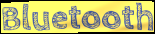
Bluetooth